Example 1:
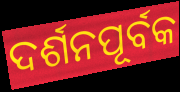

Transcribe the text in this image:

ଦର୍ଶନପୂର୍ବକ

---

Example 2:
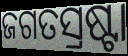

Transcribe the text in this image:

ଜଗତସ୍ରଷ୍ଟା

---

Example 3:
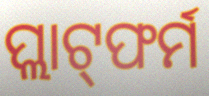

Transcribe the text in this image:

ପ୍ଲାଟ୍‌ଫର୍ମ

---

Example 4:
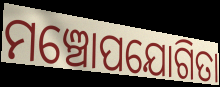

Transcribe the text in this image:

ମଞ୍ଚୋପଯୋଗିତା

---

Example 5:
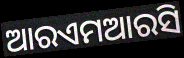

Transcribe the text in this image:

ଆରଏମଆରସି